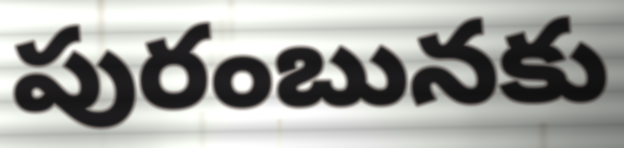
పురంబునకు